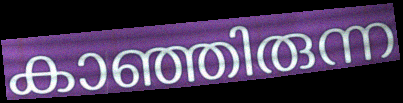
കാഞ്ഞിരുന്ന